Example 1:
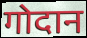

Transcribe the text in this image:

गोदान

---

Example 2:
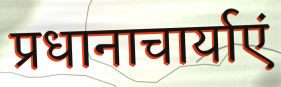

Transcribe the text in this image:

प्रधानाचार्याएं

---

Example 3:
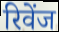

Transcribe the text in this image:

रिवेंज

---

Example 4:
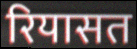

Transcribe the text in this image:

रियासत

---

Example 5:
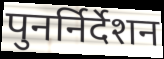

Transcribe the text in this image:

पुनर्निर्देशन